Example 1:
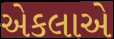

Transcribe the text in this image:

એકલાએ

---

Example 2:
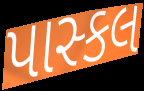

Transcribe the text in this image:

પાસ્કલ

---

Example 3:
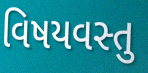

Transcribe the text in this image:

વિષયવસ્તુ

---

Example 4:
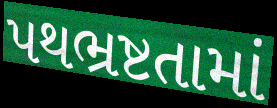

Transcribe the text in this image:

પથભ્રષ્ટતામાં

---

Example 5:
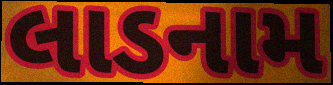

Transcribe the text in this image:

લાડનામ